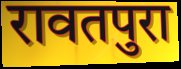
रावतपुरा